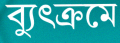
ব্যুৎক্রমে